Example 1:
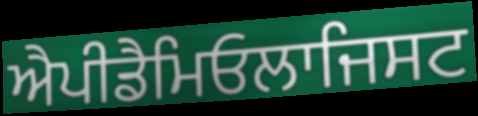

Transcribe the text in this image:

ਐਪੀਡੈਮਿਓਲਾਜਿਸਟ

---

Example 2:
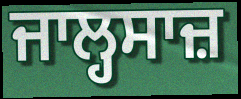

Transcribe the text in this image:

ਜਾਲ੍ਹਸਾਜ਼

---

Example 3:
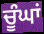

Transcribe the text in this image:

ਚੂੰਘਾਂ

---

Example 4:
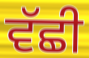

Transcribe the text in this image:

ਵੱਛੀ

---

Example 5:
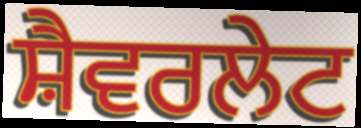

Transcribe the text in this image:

ਸ਼ੈਵਰਲੇਟ